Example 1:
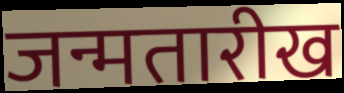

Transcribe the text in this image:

जन्मतारीख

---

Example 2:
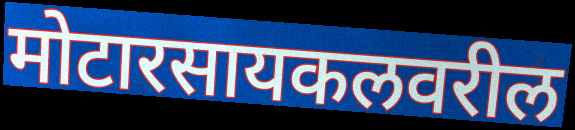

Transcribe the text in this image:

मोटारसायकलवरील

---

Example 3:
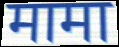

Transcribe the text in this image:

मामा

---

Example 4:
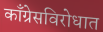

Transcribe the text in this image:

काँग्रेसविरोधात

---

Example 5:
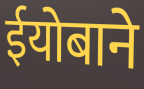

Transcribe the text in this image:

ईयोबाने